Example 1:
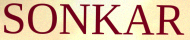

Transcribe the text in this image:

SONKAR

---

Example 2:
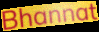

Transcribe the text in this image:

Bhannat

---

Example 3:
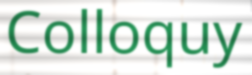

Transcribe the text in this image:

Colloquy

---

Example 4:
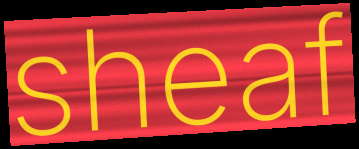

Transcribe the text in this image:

sheaf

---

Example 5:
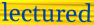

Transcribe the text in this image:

lectured